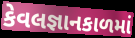
કેવલજ્ઞાનકાળમાં